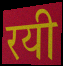
रयी